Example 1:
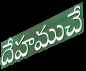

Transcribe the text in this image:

దేహముచే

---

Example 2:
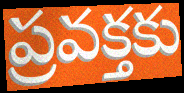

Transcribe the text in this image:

ప్రవక్తకు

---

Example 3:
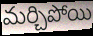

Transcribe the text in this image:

మర్చిపోయి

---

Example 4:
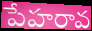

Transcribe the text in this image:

పేహరావ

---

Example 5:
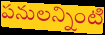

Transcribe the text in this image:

పనులన్నింటి